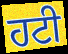
ਹਟੀ